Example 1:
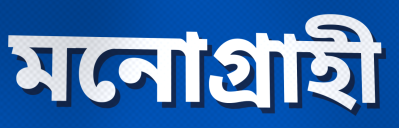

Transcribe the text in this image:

মনোগ্ৰাহী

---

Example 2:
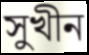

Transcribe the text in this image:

সুখীন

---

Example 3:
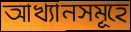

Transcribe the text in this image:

আখ্যানসমূহে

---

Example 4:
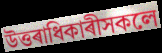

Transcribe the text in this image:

উত্তৰাধিকাৰীসকলে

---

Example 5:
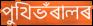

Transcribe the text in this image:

পুথিভঁৰালৰ